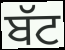
ਬੱਟ